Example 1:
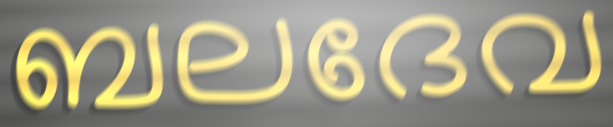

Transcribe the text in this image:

ബലദേവ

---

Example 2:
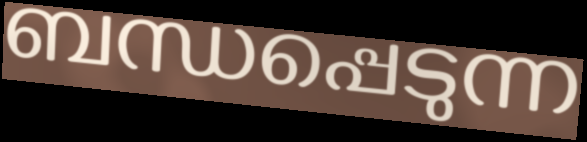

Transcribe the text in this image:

ബന്ധപ്പെടുന്ന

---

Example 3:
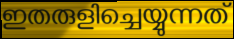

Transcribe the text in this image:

ഇതരുളിച്ചെയ്യുന്നത്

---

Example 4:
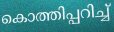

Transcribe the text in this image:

കൊത്തിപ്പറിച്ച്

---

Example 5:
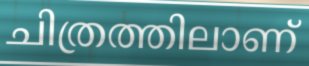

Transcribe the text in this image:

ചിത്രത്തിലാണ്